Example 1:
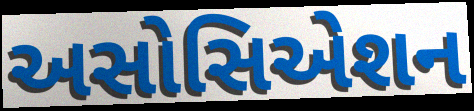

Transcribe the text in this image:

અસોસિએશન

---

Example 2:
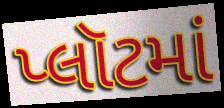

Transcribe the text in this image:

પ્લૉટમાં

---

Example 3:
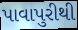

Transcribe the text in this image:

પાવાપુરીથી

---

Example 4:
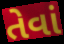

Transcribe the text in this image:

તેવાં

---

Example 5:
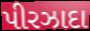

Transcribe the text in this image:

પીરઝાદા